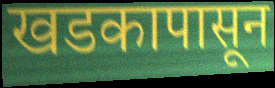
खडकापासून